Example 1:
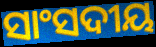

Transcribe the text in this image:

ସାଂସଦୀୟ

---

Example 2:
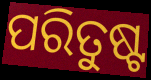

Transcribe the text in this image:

ପରିତୁଷ୍ଟ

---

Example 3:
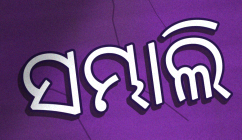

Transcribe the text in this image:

ସମ୍ଭାଲି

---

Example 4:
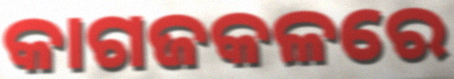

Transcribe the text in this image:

କାଗଜକଳରେ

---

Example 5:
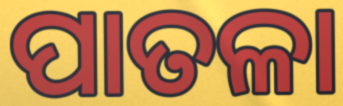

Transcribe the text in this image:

ପାତଳା